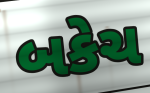
બકેચ